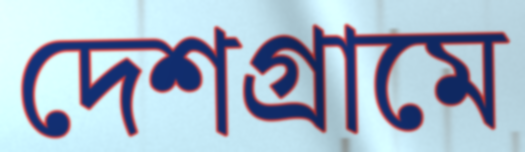
দেশগ্রামে